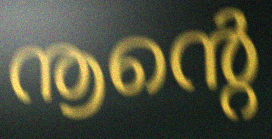
നൂന്റെ